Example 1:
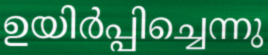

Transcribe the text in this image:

ഉയിർപ്പിച്ചെന്നു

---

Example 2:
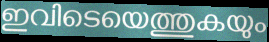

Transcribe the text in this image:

ഇവിടെയെത്തുകയും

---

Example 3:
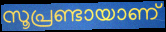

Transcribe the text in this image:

സൂപ്രണ്ടായാണ്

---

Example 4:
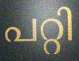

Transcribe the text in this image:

പറ്റി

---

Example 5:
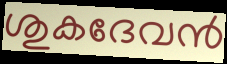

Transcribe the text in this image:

ശുകദേവൻ